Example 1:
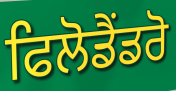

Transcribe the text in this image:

ਫਿਲੋਡੈਂਡਰੋ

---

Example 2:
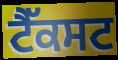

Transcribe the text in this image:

ਟੈੱਕਸਟ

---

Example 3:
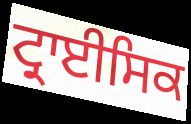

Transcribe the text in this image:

ਟ੍ਰਾਈਸਿਕ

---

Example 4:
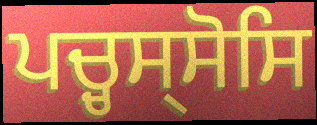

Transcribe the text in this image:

ਪਚ੍ਚਸ੍ਸੋਸਿ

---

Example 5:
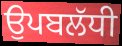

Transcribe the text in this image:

ਉਪਬਲੱਧੀ